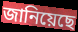
জানিয়েছে